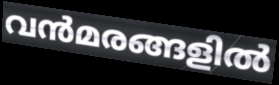
വൻമരങ്ങളിൽ